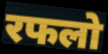
रफलो